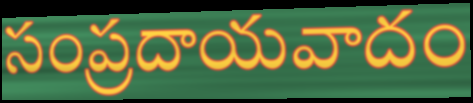
సంప్రదాయవాదం